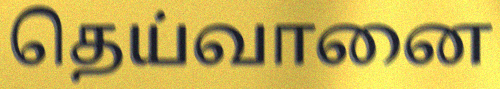
தெய்வானை